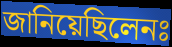
জানিয়েছিলেনঃ